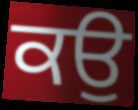
ਕਉ